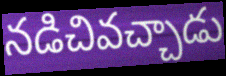
నడిచివచ్చాడు